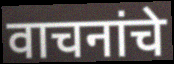
वाचनांचे